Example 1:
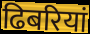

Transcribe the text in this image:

ढिबरियां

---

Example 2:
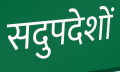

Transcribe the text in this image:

सदुपदेशों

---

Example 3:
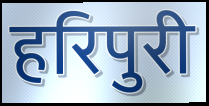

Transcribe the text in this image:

हरिपुरी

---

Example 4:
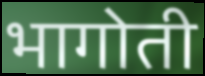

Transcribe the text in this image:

भागोती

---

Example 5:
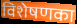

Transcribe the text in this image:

विशेषणका